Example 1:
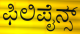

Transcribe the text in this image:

ಫಿಲಿಪೈನ್ಸ್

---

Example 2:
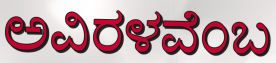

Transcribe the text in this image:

ಅವಿರಳವೆಂಬ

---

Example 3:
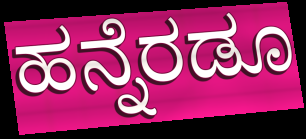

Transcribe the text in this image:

ಹನ್ನೆರಡೂ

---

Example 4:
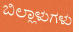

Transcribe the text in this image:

ಬಿಲ್ಲಾಳುಗಳು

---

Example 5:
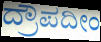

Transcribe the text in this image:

ದ್ರೌಪದೀಂ